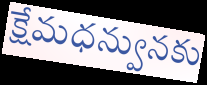
క్షేమధన్వునకు